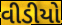
વીડીયો